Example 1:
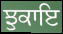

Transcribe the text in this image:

ਝੁਕਾਇ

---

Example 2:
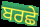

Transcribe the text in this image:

ਬਰਛੇ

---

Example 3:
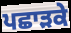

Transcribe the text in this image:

ਪਛਾੜਕੇ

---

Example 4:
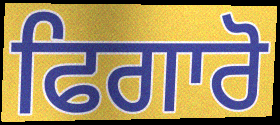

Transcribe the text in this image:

ਫਿਗਾਰੋ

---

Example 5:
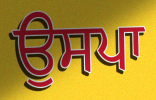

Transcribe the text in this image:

ਉਸਪਾ